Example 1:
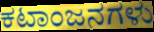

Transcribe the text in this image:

ಕಟಾಂಜನಗಳು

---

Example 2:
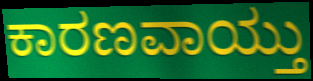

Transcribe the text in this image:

ಕಾರಣವಾಯ್ತು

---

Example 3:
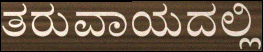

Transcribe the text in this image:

ತರುವಾಯದಲ್ಲಿ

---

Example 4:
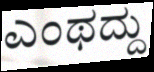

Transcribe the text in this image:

ಎಂಥದ್ದು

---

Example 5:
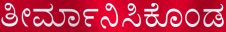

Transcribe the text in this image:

ತೀರ್ಮಾನಿಸಿಕೊಂಡ